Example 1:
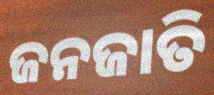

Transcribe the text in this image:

ଜନଜାତି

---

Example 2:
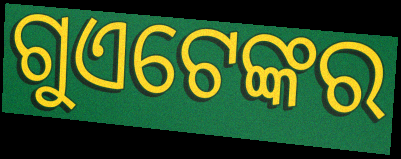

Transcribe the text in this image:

ଗୁଏଟେଙ୍କର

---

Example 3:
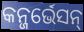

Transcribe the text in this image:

କନ୍ଜର୍ଭେସନ୍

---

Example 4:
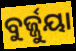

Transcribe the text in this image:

ବୁର୍ଜ୍ଜୁୟା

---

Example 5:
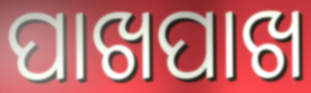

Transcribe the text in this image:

ପାଖପାଖ